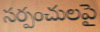
సర్పంచులపై